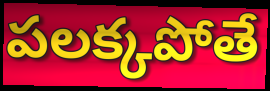
పలక్కపోతే